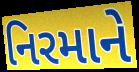
નિરમાને